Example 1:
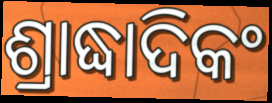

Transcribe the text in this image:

ଶ୍ରାଦ୍ଧାଦିକଂ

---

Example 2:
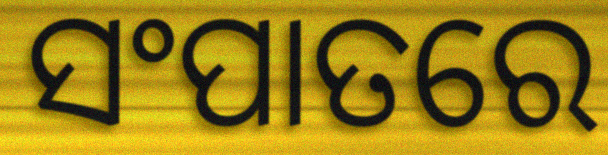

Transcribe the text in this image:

ସଂପାତରେ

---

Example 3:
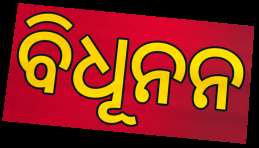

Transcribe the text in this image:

ବିଧୂନନ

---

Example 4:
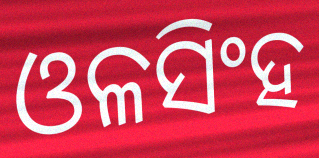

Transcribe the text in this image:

ଓଳସିଂହ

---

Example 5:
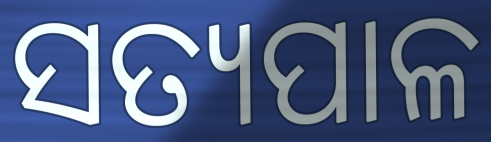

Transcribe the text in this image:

ସତ୍ୟପାଳ